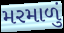
મરમાળું